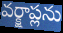
వర్క్షాప్లను